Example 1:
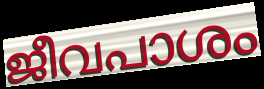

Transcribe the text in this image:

ജീവപാശം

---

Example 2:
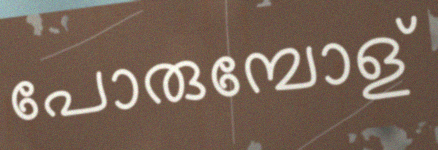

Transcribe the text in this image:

പോരുമ്പോള്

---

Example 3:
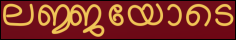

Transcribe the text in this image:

ലജ്ജയോടെ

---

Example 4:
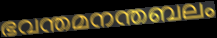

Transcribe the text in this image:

ഭവന്തമനന്തബലം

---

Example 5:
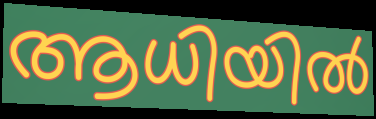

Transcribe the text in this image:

ആധിയിൽ